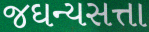
જઘન્યસત્તા